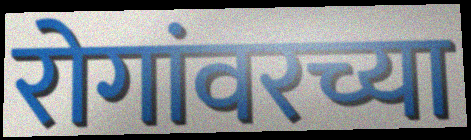
रोगांवरच्या